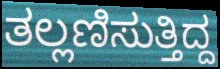
ತಲ್ಲಣಿಸುತ್ತಿದ್ದ